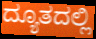
ದ್ಯೂತದಲ್ಲಿ